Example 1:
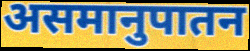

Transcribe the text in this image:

असमानुपातन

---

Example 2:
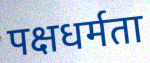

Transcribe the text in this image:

पक्षधर्मता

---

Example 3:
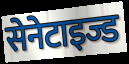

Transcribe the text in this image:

सेनेटाइज्ड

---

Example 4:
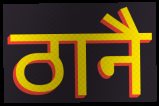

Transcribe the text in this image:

ठानै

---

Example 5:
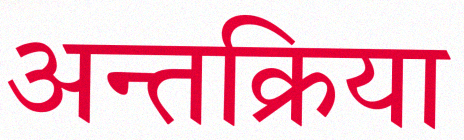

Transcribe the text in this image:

अन्तक्रिया